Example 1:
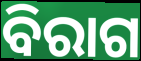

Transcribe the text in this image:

ବିରାଗ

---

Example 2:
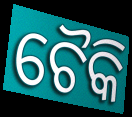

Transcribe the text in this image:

ଚୈକି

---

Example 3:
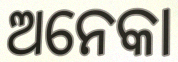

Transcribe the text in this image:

ଅନେକା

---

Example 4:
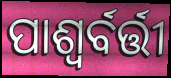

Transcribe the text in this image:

ପାଶ୍ୱର୍ବର୍ତ୍ତୀ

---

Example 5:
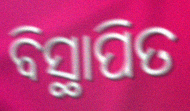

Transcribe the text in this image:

ବିସ୍ଥାପିତ